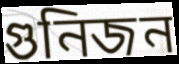
গুনিজন